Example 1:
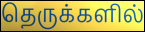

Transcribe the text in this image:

தெருக்களில்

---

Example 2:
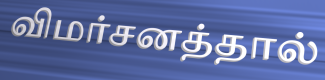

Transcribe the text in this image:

விமர்சனத்தால்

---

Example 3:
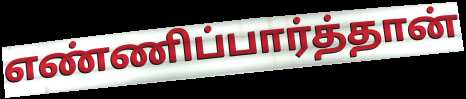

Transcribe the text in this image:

எண்ணிப்பார்த்தான்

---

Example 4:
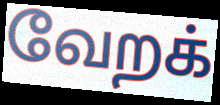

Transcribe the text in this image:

வேறக்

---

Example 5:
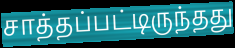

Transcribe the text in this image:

சாத்தப்பட்டிருந்தது